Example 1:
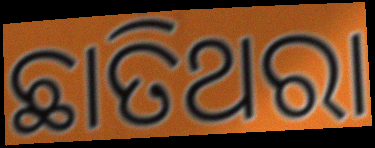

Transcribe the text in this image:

ଛାତିଥରା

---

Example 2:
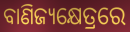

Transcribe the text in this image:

ବାଣିଜ୍ୟକ୍ଷେତ୍ରରେ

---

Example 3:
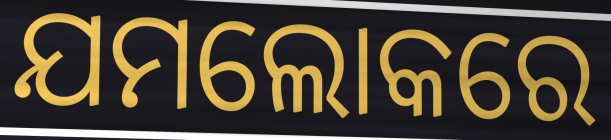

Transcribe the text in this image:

ଯମଲୋକରେ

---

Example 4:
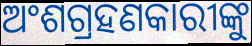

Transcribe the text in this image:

ଅଂଶଗ୍ରହଣକାରୀଙ୍କୁ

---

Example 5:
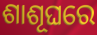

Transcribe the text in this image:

ଶାଶୂଘରେ